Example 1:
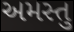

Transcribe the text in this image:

અમસ્તુ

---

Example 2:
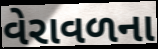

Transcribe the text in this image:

વેરાવળના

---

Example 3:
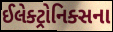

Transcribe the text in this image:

ઈલેક્ટ્રોનિક્સના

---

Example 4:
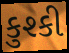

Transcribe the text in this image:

કુશ્કી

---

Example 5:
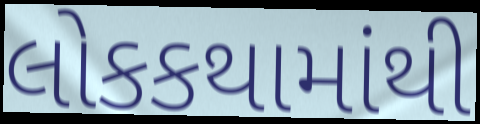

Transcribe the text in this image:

લોકકથામાંથી